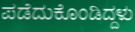
ಪಡೆದುಕೊಂಡಿದ್ದಳು